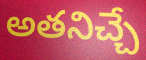
అతనిచ్చే